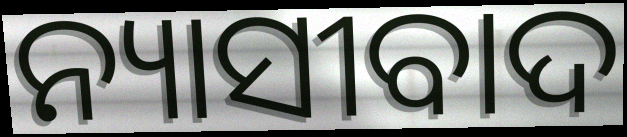
ନ୍ୟାସୀବାଦ